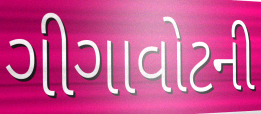
ગીગાવોટની